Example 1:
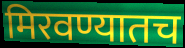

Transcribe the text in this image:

मिरवण्यातच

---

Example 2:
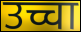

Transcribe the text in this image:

उच्चा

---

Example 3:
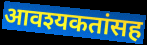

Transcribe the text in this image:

आवश्यकतांसह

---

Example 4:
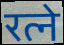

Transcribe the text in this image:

रत्ने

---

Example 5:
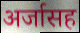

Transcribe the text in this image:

अर्जासह